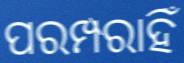
ପରମ୍ପରାହିଁ